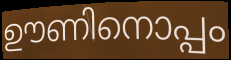
ഊണിനൊപ്പം